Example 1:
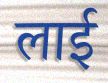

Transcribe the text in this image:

लाई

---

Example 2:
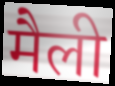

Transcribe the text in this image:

मैली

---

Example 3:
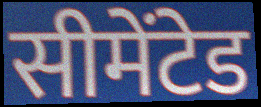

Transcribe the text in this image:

सीमेंटेड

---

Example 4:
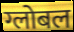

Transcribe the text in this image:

ग्लोबल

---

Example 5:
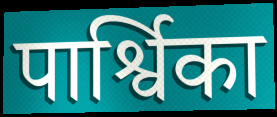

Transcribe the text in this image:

पार्श्विका